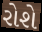
રોશે